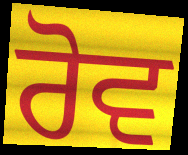
ਰੋਵ